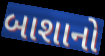
બાશાનો